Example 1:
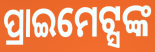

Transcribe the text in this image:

ପ୍ରାଇମେଟ୍ସଙ୍କ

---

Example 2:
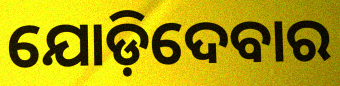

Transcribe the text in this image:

ଯୋଡ଼ିଦେବାର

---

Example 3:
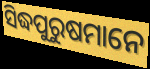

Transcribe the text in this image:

ସିଦ୍ଧପୁରୁଷମାନେ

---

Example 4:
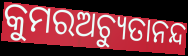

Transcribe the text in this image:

କୁମରଅଚ୍ୟୁତାନନ୍ଦ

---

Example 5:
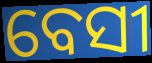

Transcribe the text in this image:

ବେସୀ